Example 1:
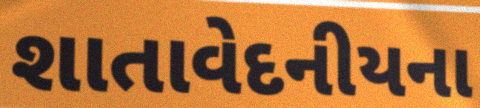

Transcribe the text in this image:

શાતાવેદનીયના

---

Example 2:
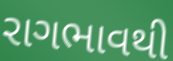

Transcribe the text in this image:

રાગભાવથી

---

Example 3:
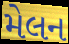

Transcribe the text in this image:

મેલન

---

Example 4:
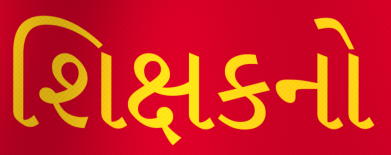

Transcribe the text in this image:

શિક્ષકનો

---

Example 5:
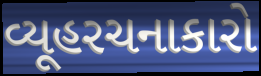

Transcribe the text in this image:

વ્યૂહરચનાકારો